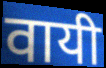
वायी